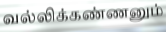
வல்லிக்கண்ணனும்